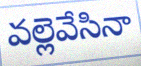
వల్లెవేసినా